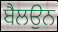
ਬੈਲਉਨ